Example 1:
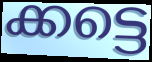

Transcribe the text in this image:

ക്കട്ടെ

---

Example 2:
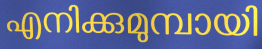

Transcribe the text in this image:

എനിക്കുമുമ്പായി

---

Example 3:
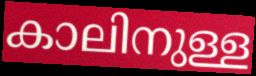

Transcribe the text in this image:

കാലിനുള്ള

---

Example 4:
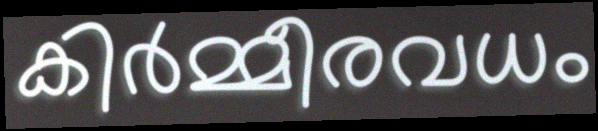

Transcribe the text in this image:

കിർമ്മീരവധം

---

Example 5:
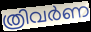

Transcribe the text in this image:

ത്രിവർണ